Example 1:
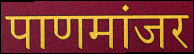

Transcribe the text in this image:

पाणमांजर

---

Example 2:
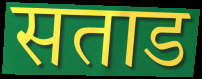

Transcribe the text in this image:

सताड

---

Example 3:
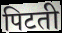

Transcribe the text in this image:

पिटती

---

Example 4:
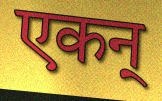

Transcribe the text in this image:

एकन्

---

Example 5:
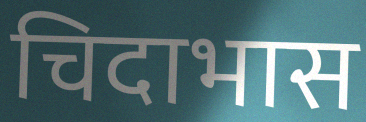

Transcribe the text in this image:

चिदाभास